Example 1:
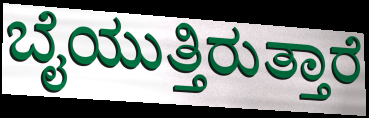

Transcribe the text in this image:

ಬೈಯುತ್ತಿರುತ್ತಾರೆ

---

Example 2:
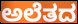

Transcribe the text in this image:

ಅಲೆತದ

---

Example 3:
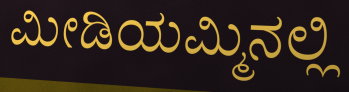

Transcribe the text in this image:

ಮೀಡಿಯಮ್ಮಿನಲ್ಲಿ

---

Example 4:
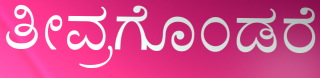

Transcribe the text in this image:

ತೀವ್ರಗೊಂಡರೆ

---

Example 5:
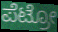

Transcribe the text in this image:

ಪೆಟ್ರೋ